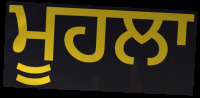
ਮੂਹਲਾ